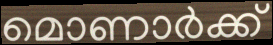
മൊണാർക്ക്